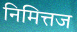
निमित्तज